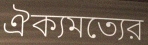
ঐক্যমত্যের